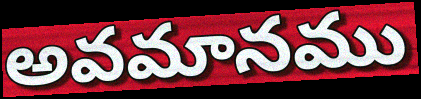
అవమానము